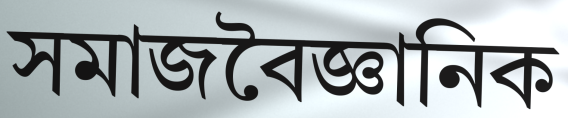
সমাজবৈজ্ঞানিক